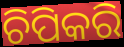
ଚିପିକରି